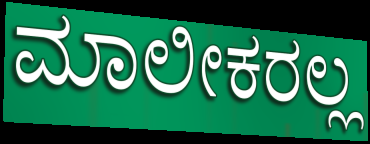
ಮಾಲೀಕರಲ್ಲ